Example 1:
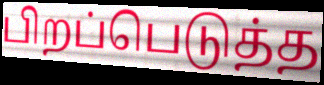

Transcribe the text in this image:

பிறப்பெடுத்த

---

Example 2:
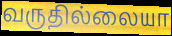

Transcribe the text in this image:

வருதில்லையா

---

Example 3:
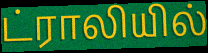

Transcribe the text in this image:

ட்ராலியில்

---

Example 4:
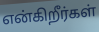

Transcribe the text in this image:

என்கிறீர்கள்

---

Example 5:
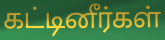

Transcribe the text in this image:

கட்டினீர்கள்